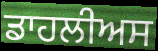
ਡਾਹਲੀਅਸ